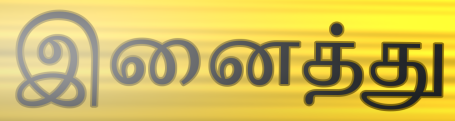
இனைத்து